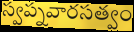
స్వప్నవారసత్వం